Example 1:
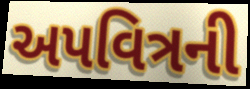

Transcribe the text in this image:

અપવિત્રની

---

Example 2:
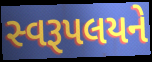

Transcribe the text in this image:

સ્વરૂપલયને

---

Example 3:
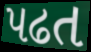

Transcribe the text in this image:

પઢત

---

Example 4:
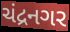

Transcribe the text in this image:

ચંદ્રનગર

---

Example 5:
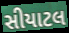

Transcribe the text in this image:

સીયાટલ